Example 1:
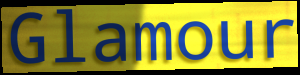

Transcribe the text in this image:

Glamour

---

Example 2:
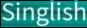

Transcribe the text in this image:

Singlish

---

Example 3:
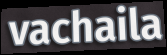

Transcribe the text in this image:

vachaila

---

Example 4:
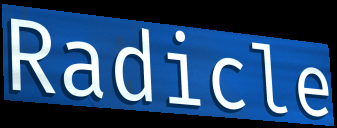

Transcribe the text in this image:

Radicle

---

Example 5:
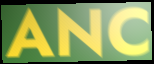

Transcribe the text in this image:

ANC